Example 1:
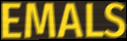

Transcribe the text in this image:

EMALS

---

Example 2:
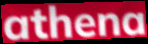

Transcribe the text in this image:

athena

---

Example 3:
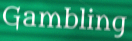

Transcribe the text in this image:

Gambling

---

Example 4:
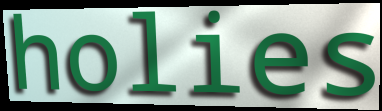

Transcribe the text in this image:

holies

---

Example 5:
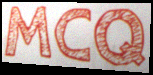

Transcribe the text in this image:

MCQ